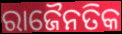
ରାଜୈନତିକ